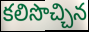
కలిసొచ్చిన